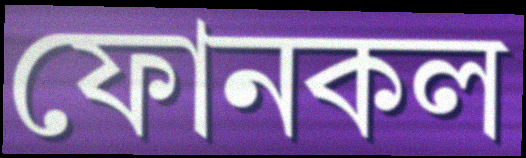
ফোনকল